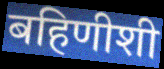
बहिणीशी